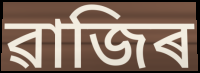
ৱাজিৰ